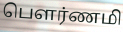
பௌர்ணமி